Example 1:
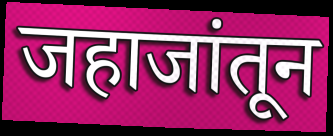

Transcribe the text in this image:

जहाजांतून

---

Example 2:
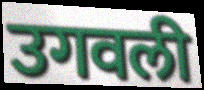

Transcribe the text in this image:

उगवली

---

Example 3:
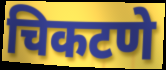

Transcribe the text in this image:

चिकटणे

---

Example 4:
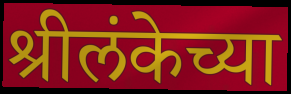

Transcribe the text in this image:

श्रीलंकेच्या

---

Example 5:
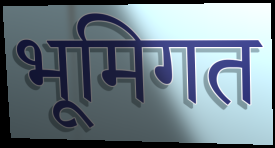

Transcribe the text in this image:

भूमिगत